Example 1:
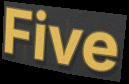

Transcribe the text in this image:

Five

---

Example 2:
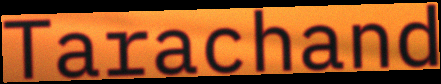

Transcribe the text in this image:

Tarachand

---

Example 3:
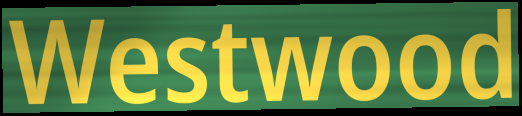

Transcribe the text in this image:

Westwood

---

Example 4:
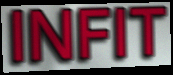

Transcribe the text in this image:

INFIT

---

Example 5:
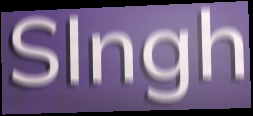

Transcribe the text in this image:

SIngh